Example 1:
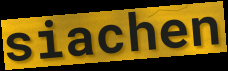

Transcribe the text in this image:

siachen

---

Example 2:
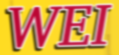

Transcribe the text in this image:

WEI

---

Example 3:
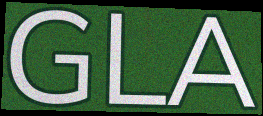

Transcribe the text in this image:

GLA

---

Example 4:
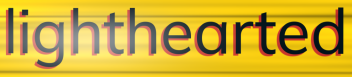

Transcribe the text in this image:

lighthearted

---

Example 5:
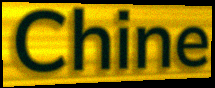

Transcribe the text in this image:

Chine